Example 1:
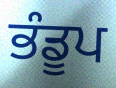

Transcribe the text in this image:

ਭੰਡੂਪ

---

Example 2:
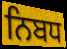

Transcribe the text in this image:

ਨਿਬਧ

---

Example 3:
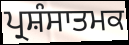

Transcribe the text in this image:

ਪ੍ਰਸ਼ੰਸਾਤਮਕ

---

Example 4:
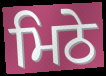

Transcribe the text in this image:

ਮਿਠੇ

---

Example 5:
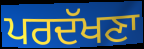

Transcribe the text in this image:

ਪਰਦੱਖਣਾ